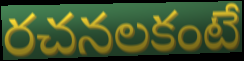
రచనలకంటే